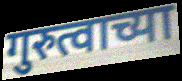
गुरुत्वाच्या